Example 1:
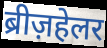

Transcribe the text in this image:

ब्रीज़हेलर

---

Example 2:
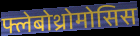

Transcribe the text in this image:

फ्लेबोथ्रोमोसिस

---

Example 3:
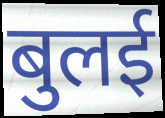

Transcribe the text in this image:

बुलई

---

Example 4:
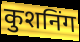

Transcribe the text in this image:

कुशनिंग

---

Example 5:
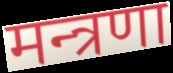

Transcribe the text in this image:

मन्त्रणा